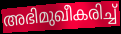
അഭിമുഖീകരിച്ച്